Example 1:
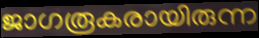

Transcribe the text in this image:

ജാഗരൂകരായിരുന്ന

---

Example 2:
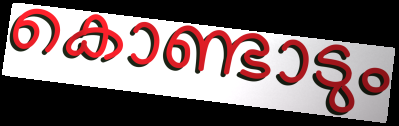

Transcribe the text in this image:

കൊണ്ടാടും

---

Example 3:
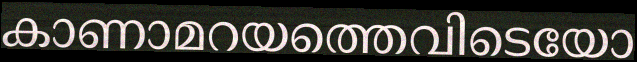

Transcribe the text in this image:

കാണാമറയത്തെവിടെയോ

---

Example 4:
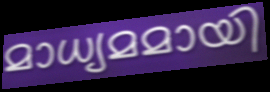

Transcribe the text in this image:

മാധ്യമമായി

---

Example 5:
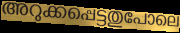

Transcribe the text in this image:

അറുക്കപ്പെട്ടതുപോലെ